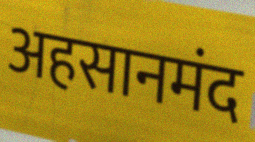
अहसानमंद